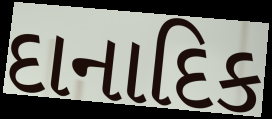
દાનાદિક